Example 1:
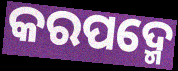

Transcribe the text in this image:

କରପଦ୍ମେ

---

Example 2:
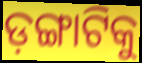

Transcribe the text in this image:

ଡ଼ଙ୍ଗାଟିକୁ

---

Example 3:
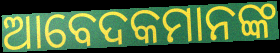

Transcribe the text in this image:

ଆବେଦକମାନଙ୍କ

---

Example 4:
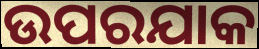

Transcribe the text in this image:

ଉପରଯାକ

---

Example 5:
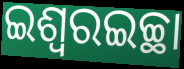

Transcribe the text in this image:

ଇଶ୍ୱରଇଚ୍ଛା